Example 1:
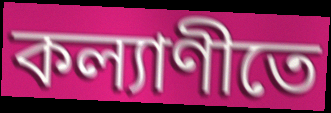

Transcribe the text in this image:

কল্যাণীতে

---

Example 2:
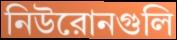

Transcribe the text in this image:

নিউরোনগুলি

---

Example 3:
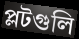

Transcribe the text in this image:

প্লটগুলি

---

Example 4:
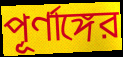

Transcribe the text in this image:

পূর্ণাঙ্গের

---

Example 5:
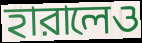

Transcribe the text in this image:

হারালেও